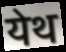
येथ